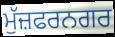
ਮੁੱਜ਼ਫਰਨਗਰ